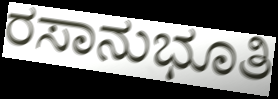
ರಸಾನುಭೂತಿ